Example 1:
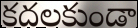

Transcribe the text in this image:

కదలకుండా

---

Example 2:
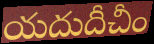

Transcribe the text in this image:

యదుదీచీం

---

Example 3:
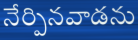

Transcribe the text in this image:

నేర్పినవాడను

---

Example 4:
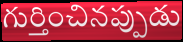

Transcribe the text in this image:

గుర్తించినప్పుడు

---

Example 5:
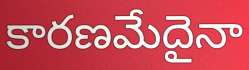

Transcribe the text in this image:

కారణమేదైనా